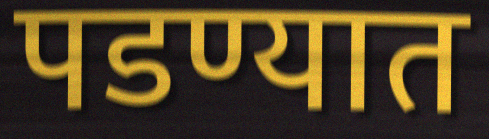
पडण्यात